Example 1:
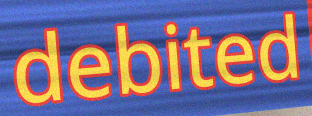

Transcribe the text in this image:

debited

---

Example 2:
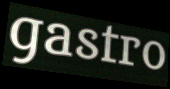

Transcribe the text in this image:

gastro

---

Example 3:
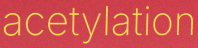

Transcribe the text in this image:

acetylation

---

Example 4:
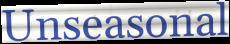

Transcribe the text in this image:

Unseasonal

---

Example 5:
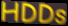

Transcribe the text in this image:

HDDs